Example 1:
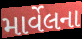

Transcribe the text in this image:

માર્વેલના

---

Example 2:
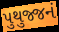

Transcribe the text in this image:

પુથુજ્જનં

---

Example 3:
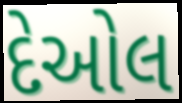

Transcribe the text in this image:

દેઓલ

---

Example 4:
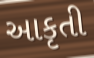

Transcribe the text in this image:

આકૃતી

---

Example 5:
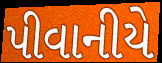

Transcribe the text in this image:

પીવાનીયે